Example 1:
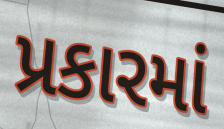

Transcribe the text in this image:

પ્રકારમાં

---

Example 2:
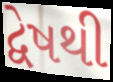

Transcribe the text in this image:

દ્વેષથી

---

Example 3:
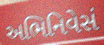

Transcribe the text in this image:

અભિનિવેસં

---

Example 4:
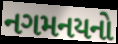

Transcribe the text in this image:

નગમનયનો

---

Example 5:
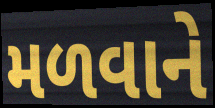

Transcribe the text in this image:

મળવાને